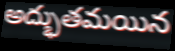
అద్భుతమయిన